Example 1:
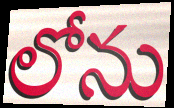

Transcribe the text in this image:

లోను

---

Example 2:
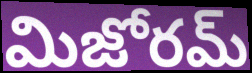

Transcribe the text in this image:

మిజోరమ్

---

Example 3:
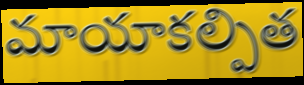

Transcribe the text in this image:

మాయాకల్పిత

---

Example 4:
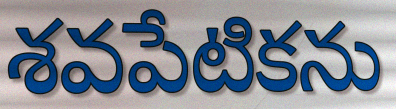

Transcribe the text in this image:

శవపేటికను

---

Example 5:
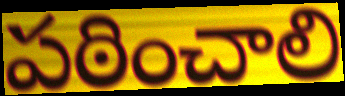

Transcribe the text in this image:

పఠించాలి